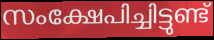
സംക്ഷേപിച്ചിട്ടുണ്ട്